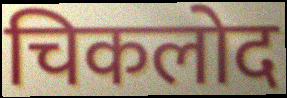
चिकलोद